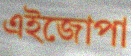
এইজোপা